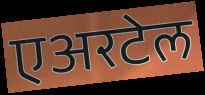
एअरटेल